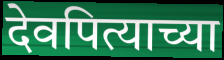
देवपित्याच्या